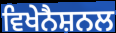
ਵਿਖੇਨੈਸ਼ਨਲ